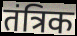
तंत्रिक